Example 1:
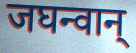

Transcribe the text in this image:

जघन्वान्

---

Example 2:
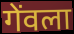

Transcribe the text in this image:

गेंवला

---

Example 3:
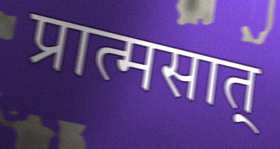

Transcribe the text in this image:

प्रात्मसात्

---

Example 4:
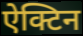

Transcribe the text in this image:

ऐक्टिन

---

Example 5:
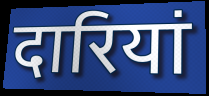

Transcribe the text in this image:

दारियां